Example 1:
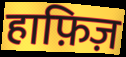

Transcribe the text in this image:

हाफ़िज़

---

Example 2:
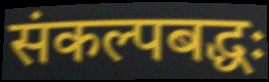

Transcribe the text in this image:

संकल्पबद्धः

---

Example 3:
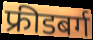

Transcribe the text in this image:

फ्रीडबर्ग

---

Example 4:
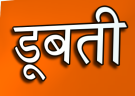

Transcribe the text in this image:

डूबती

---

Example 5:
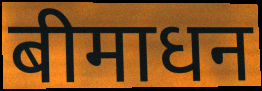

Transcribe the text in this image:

बीमाधन